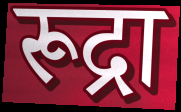
रूद्रा